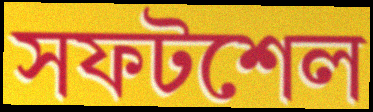
সফটশেল